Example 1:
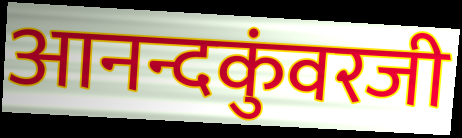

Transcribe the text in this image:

आनन्दकुंवरजी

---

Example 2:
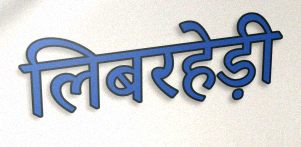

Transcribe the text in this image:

लिबरहेड़ी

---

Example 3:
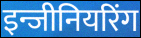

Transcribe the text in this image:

इन्जीनियरिंग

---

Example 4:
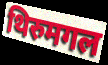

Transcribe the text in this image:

थिरुमगल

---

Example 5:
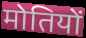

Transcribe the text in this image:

मोतियों